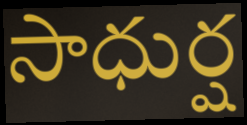
సాధుర్ష